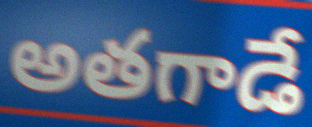
అతగాడే